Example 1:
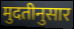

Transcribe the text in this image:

मुदतीनुसार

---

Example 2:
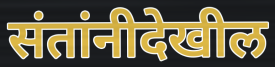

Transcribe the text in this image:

संतांनीदेखील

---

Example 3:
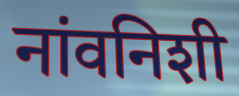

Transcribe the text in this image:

नांवनिशी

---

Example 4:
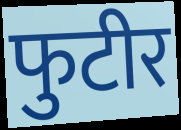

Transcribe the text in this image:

फुटीर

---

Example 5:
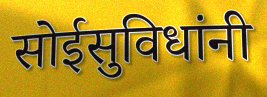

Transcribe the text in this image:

सोईसुविधांनी